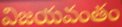
విజయవంతం